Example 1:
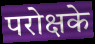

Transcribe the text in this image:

परोक्षके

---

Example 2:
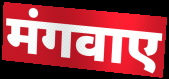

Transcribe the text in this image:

मंगवाए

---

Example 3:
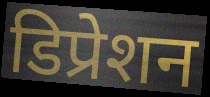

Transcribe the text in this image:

डिप्रेशन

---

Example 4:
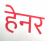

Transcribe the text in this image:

हेनर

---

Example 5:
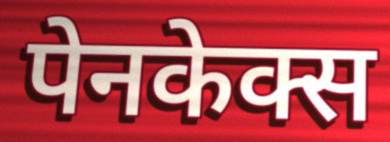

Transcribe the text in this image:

पेनकेक्स